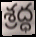
శ్రద్ధ